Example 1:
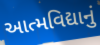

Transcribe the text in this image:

આત્મવિદ્યાનું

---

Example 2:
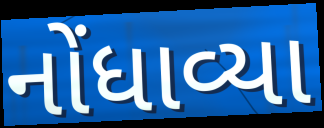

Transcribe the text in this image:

નોંધાવ્યા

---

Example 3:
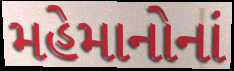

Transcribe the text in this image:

મહેમાનોનાં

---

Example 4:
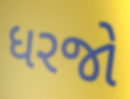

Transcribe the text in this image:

ધરજો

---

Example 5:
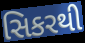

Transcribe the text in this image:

સિકરથી